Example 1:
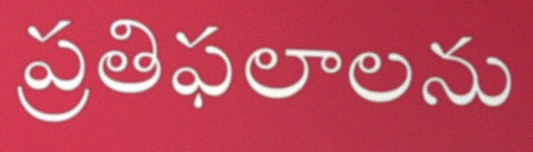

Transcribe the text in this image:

ప్రతిఫలాలను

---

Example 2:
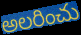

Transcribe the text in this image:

అలరించు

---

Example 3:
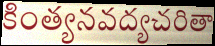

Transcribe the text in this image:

కింత్యనవద్యచరితా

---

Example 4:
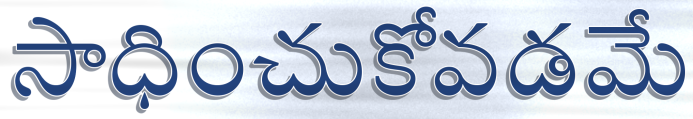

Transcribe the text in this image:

సాధించుకోవడమే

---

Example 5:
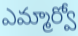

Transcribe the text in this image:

ఎమ్మార్వో